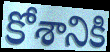
కోశానికి